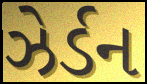
ઝેર્ડન